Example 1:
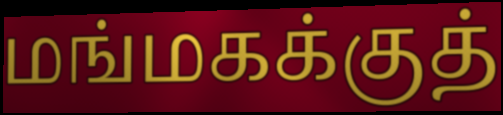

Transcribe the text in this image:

மங்மகக்குத்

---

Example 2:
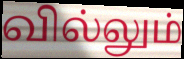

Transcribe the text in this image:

வில்லும்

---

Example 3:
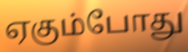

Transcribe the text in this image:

ஏகும்போது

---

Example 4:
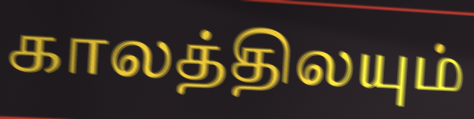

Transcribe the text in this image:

காலத்திலயும்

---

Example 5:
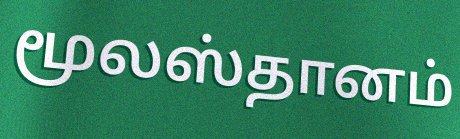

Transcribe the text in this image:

மூலஸ்தானம்